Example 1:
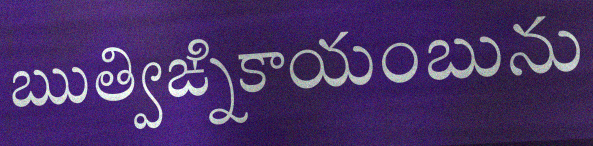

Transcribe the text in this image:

ఋత్విఙ్నికాయంబును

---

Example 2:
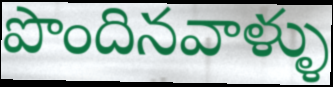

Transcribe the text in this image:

పొందినవాళ్ళు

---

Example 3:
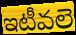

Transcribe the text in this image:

ఇటీవలె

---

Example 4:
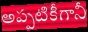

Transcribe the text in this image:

అప్పటికీగానీ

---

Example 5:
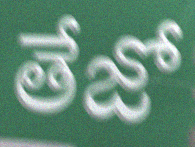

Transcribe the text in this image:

తేజో